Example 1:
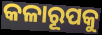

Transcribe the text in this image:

କଳାରୂପକୁ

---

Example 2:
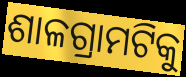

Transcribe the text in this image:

ଶାଳଗ୍ରାମଟିକୁ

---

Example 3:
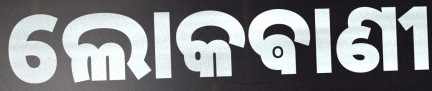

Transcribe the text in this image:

ଲୋକଵାଣୀ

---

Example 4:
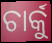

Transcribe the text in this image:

ଚାର୍କୁ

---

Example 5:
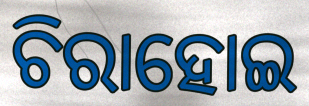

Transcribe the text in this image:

ଚିରାହୋଇ